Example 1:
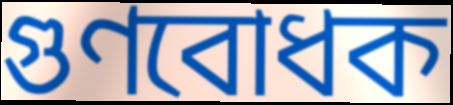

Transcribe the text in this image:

গুণবোধক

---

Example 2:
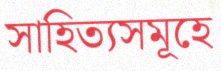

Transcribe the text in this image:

সাহিত্যসমূহে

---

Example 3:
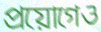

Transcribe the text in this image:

প্ৰয়োগেও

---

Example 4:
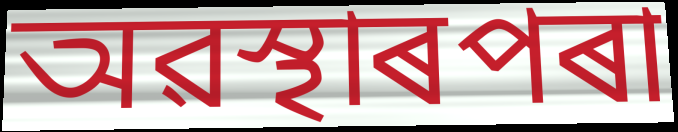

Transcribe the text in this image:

অৱস্থাৰপৰা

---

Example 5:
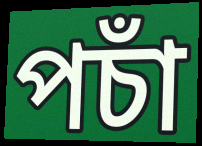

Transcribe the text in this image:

পচাঁ